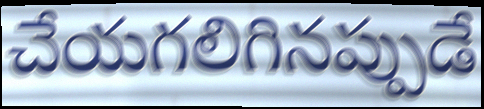
చేయగలిగినప్పుడే